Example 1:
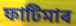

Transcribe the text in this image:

ফাটিমাৰ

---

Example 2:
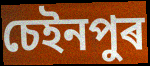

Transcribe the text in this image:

চেইনপুৰ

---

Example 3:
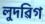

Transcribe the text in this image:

লুদৱিগ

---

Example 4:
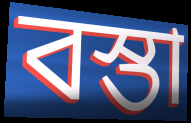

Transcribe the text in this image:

বস্তা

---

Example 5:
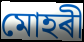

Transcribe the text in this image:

মোহৰী